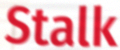
Stalk